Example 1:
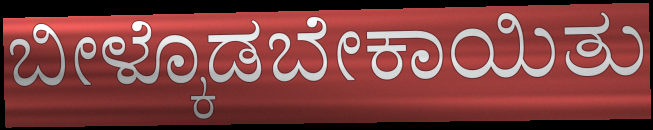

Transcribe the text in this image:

ಬೀಳ್ಕೊಡಬೇಕಾಯಿತು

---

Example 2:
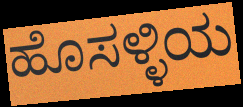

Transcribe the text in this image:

ಹೊಸಳ್ಳಿಯ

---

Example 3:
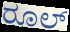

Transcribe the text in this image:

ರೂಲ್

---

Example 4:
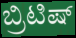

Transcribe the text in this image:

ಬ್ರಿಟಿಷ್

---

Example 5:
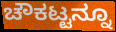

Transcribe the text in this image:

ಚೌಕಟ್ಟನ್ನೂ